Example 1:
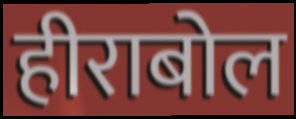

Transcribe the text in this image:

हीराबोल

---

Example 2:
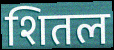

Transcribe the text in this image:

शितल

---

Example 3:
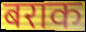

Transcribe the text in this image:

बराक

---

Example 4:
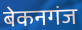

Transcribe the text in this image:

बेकनगंज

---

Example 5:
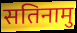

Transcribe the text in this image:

सतिनामु